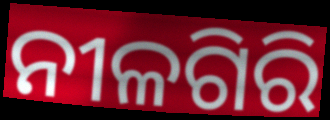
ନୀଳଗିରି